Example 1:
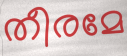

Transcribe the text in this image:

തീരമേ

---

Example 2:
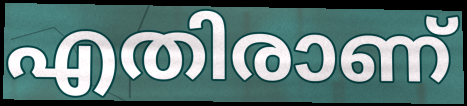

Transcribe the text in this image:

എതിരാണ്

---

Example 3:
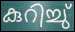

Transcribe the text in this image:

കുറിച്ചു്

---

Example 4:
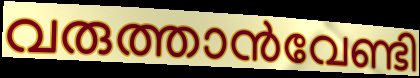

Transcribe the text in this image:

വരുത്താൻവേണ്ടി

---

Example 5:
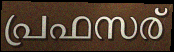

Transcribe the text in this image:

പ്രഫസര്